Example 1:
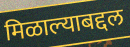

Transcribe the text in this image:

मिळाल्याबद्दल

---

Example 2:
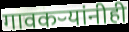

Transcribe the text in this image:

गावकऱ्यांनीही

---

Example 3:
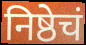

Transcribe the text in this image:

निष्ठेचं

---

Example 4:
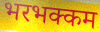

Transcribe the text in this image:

भरभक्कम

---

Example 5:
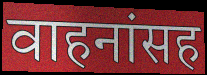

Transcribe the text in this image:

वाहनांसह